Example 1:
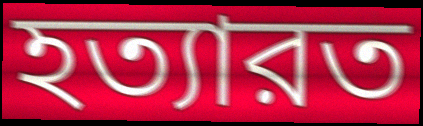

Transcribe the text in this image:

হত্যারত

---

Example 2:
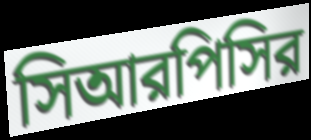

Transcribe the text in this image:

সিআরপিসির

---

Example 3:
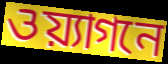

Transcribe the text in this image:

ওয়্যাগনে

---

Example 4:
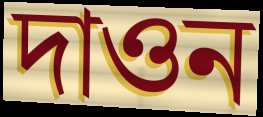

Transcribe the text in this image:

দাওন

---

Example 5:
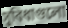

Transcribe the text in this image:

সুবিধাগুলো